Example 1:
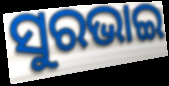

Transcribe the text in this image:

ସୁରଭାଇ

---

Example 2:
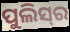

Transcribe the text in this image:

ପୁଲିସ୍‍ର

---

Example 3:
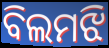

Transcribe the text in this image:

ବିଲମଝି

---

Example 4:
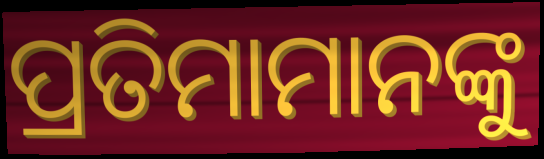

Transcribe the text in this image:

ପ୍ରତିମାମାନଙ୍କୁ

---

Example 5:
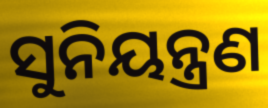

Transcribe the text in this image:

ସୁନିୟନ୍ତ୍ରଣ